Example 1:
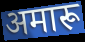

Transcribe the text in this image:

अमारू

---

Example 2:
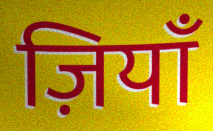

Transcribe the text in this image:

ज़ियाँ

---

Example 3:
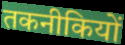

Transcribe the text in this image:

तकनीकियों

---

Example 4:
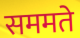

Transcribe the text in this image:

सममते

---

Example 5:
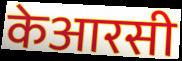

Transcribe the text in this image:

केआरसी